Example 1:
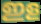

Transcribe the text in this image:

ഇള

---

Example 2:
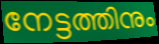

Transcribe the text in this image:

നേട്ടത്തിനും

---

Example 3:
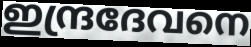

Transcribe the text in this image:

ഇന്ദ്രദേവനെ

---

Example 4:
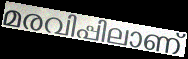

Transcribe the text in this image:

മരവിപ്പിലാണ്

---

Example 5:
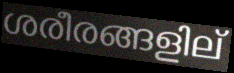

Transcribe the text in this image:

ശരീരങ്ങളില്